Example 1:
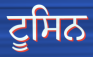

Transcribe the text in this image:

ਟੂਸਿਨ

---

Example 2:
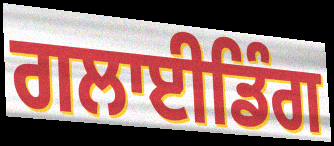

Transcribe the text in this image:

ਗਲਾਈਡਿੰਗ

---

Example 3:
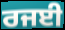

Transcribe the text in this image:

ਰਜਈ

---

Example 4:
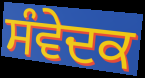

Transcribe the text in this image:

ਸੰਵੇਦਕ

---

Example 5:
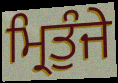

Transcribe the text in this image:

ਮ੍ਰਿਤੁੰਜੇ